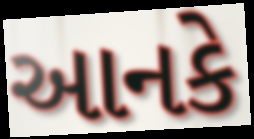
આનકે